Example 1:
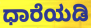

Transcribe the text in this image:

ಧಾರೆಯಡಿ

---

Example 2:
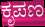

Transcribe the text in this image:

ಕೃಪಣ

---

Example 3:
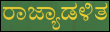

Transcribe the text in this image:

ರಾಜ್ಯಾಡಳಿತ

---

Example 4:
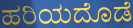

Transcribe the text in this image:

ಹರಿಯದೊಡೆ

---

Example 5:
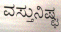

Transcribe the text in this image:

ವಸ್ತುನಿಷ್ಟ